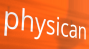
physican